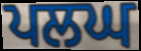
ਪਲਘ